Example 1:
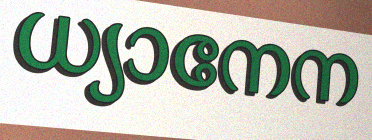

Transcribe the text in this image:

ധ്യാനേന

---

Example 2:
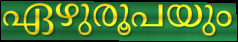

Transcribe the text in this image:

ഏഴുരൂപയും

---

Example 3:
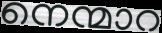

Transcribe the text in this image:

നെന്മാറ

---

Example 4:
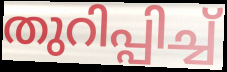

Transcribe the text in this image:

തുറിപ്പിച്ച്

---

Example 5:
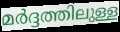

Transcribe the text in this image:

മർദ്ദത്തിലുള്ള